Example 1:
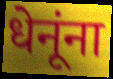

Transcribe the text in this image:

धेनूंना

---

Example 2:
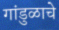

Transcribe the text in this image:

गांडुळाचे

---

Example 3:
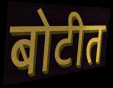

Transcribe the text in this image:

बोटीत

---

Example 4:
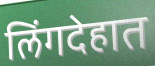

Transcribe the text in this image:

लिंगदेहात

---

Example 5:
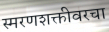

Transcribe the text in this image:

स्मरणशक्तीवरचा